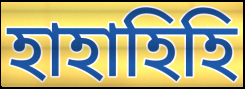
হাহাহিহি